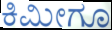
ಕಿಮೀಗೂ